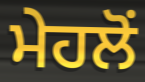
ਮੇਹਲੋਂ